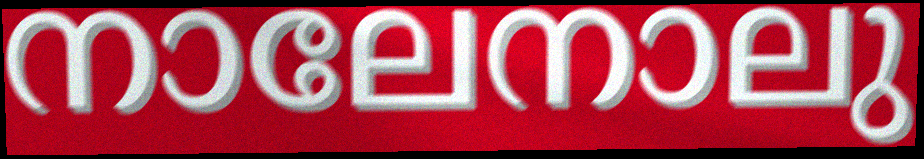
നാലേനാലു